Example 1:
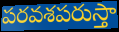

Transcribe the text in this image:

పరవశపరుస్తా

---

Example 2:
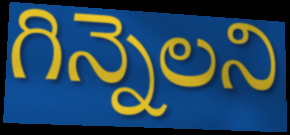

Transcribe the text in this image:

గిన్నెలని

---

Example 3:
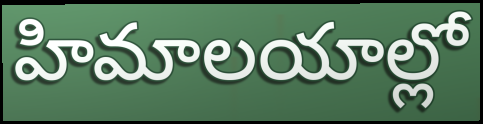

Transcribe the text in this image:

హిమాలయాల్లో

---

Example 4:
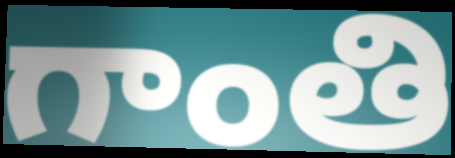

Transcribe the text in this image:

గాంతి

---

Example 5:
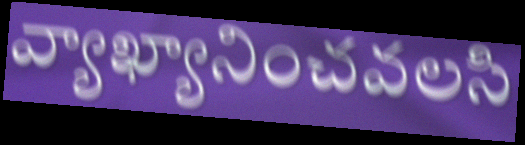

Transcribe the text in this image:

వ్యాఖ్యానించవలసి